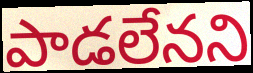
పాడలేనని